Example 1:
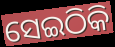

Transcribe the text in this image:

ସେଇଠିକି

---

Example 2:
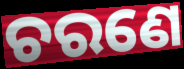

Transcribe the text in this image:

ଚରଣେ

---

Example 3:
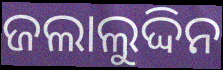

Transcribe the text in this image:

ଜଲାଲୁଦ୍ଦିନ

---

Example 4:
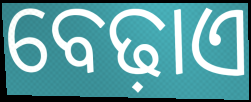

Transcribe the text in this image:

ବେଢ଼ାଏ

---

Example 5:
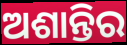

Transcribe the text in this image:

ଅଶାନ୍ତିର